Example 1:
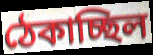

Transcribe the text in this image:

ঠেকাচ্ছিল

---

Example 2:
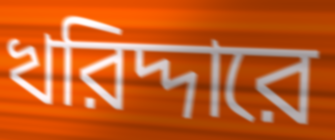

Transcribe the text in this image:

খরিদ্দারে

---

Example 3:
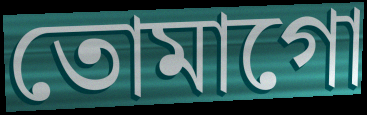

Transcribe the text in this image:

তোমাগো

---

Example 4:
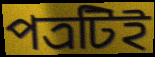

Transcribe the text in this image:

পত্রটিই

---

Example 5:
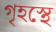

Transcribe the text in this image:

গৃহস্থে